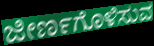
ಜೀರ್ಣಗೊಳಿಸುವ